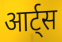
आर्ट्स